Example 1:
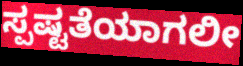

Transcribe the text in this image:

ಸ್ಪಷ್ಟತೆಯಾಗಲೀ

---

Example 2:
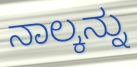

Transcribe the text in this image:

ನಾಲ್ಕನ್ನು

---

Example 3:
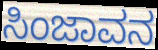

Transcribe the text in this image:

ಸಿಂಜಾವನ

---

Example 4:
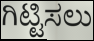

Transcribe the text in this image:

ಗಿಟ್ಟಿಸಲು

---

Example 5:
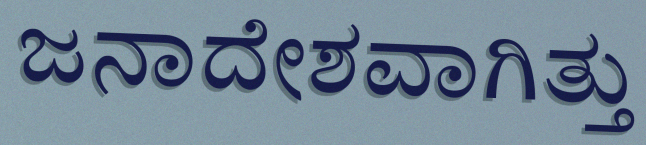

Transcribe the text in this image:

ಜನಾದೇಶವಾಗಿತ್ತು